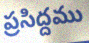
ప్రసిద్దము